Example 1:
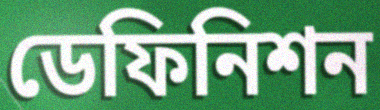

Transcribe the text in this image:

ডেফিনিশন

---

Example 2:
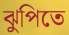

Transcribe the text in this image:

ঝুপিতে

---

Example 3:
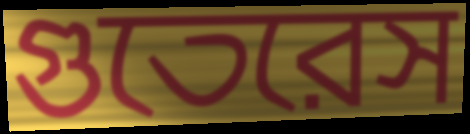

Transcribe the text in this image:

গুতেরেস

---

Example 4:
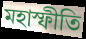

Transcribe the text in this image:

মহাস্ফীতি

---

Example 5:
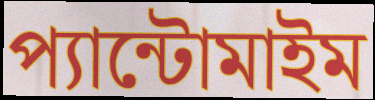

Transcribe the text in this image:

প্যান্টোমাইম